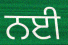
ਨਈ